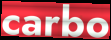
carbo